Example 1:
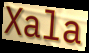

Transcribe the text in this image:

Xala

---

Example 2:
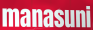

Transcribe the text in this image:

manasuni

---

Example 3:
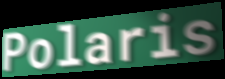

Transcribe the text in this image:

Polaris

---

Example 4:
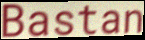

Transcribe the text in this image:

Bastan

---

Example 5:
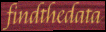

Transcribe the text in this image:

findthedata